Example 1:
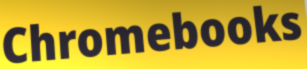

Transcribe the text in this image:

Chromebooks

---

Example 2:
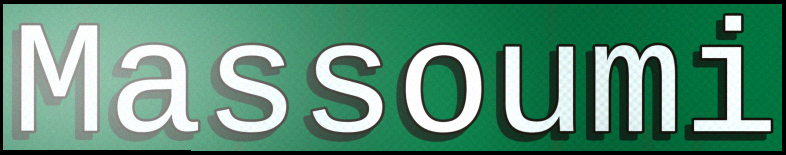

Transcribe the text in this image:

Massoumi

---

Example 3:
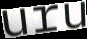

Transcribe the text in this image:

uru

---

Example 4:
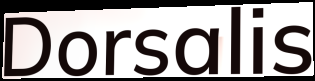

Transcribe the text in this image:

Dorsalis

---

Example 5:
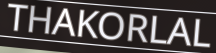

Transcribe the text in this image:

THAKORLAL